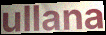
ullana